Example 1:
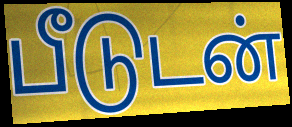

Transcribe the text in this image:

பீடுடன்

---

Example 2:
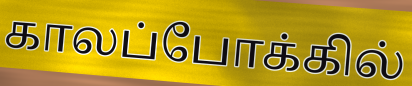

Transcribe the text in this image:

காலப்போக்கில்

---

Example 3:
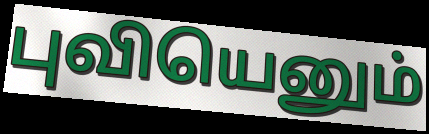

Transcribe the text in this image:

புவியெனும்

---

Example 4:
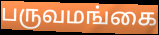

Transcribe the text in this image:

பருவமங்கை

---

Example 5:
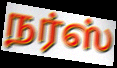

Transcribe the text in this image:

நர்ஸ்